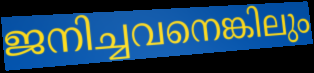
ജനിച്ചവനെങ്കിലും